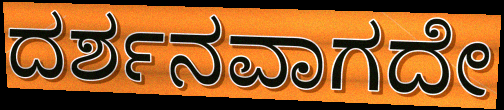
ದರ್ಶನವಾಗದೇ